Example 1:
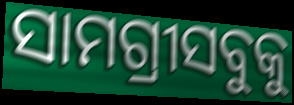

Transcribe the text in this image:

ସାମଗ୍ରୀସବୁକୁ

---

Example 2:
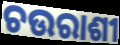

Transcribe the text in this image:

ଚଉରାଶୀ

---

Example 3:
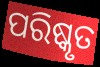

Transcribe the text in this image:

ପରିଷ୍କୃତ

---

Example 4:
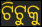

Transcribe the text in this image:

ଟିଟୁକୁ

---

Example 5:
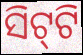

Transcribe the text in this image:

ସିଟ୍‌ଟି